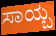
ಸಾಯ್ಬ